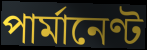
পাৰ্মানেণ্ট